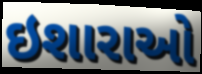
ઇશારાઓ